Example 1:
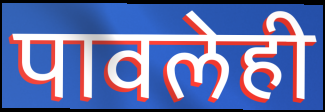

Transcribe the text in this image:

पावलेही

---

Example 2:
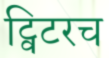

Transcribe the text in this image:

ट्विटरच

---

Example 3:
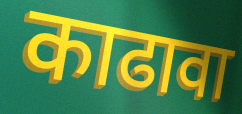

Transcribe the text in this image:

काढावा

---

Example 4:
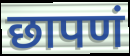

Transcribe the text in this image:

छापणं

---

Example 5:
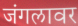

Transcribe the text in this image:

जंगलावर